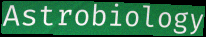
Astrobiology